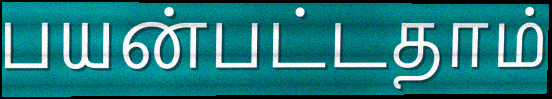
பயன்பட்டதாம்